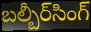
బల్బీర్‌సింగ్